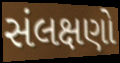
સંલક્ષણો